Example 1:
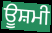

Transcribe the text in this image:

ਊਸ਼ਮੀ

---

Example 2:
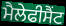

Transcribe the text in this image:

ਮੈਲੇਫੀਸੈਂਟ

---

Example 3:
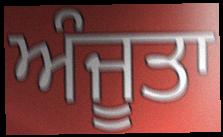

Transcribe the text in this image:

ਅੰਜੂਤਾ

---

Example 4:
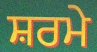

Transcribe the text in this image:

ਸ਼ਰਮੇ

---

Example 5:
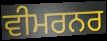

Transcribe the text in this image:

ਵੀਮਰਨਰ